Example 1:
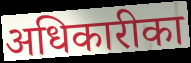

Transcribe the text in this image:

अधिकारीका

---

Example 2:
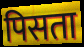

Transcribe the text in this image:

पिसता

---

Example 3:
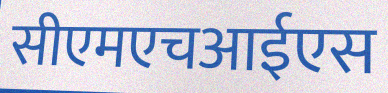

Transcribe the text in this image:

सीएमएचआईएस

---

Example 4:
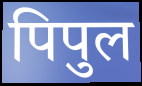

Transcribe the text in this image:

पिपुल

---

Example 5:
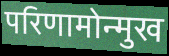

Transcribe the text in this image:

परिणामोन्मुख